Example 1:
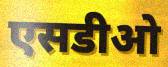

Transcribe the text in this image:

एसडीओ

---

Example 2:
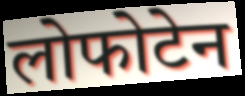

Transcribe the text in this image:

लोफोटेन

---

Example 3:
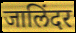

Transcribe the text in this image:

जालिंदर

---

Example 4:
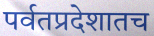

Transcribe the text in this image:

पर्वतप्रदेशातच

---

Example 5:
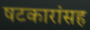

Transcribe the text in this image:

षटकारांसह